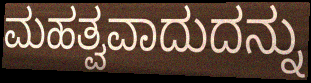
ಮಹತ್ವವಾದುದನ್ನು